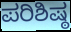
ಪರಿಶಿಷ್ಠ